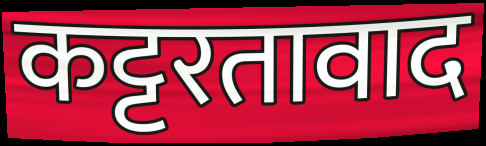
कट्टरतावाद